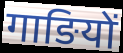
गाङियों